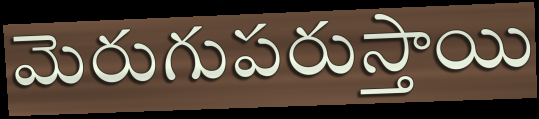
మెరుగుపరుస్తాయి